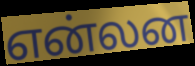
என்லன